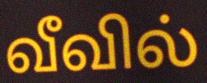
வீவில்